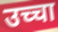
उच्चा